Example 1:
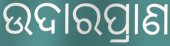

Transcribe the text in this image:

ଉଦାରପ୍ରାଣ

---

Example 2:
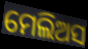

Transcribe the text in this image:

ମେଲିଅସ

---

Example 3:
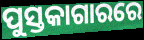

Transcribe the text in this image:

ପୁସ୍ତକାଗାରରେ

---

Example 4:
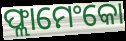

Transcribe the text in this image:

ଫ୍ଲାମେଂକୋ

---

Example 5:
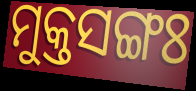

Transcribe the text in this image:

ମୁକ୍ତସଙ୍ଗଃ